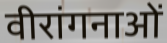
वीरांगनाओं